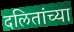
दलितांच्या